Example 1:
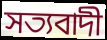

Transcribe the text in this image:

সত্যবাদী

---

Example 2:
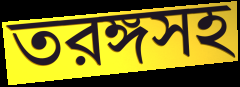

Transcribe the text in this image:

তরঙ্গসহ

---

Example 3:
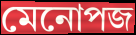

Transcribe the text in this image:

মেনোপজ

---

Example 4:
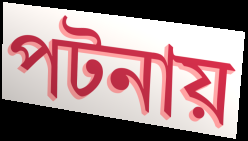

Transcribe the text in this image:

পটনায়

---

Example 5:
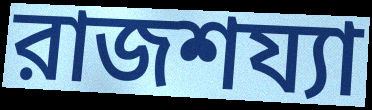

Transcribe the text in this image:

রাজশয্যা